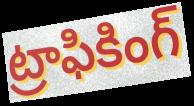
ట్రాఫికింగ్